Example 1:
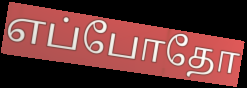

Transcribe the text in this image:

எப்போதோ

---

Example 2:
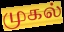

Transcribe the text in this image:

முகல்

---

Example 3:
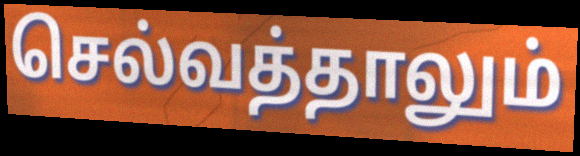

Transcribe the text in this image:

செல்வத்தாலும்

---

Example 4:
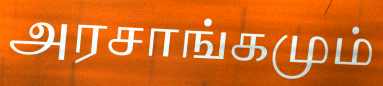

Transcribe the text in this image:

அரசாங்கமும்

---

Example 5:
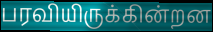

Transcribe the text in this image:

பரவியிருக்கின்றன